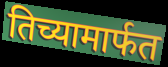
तिच्यामार्फत